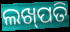
ଲଖ୍‌ପତି